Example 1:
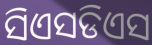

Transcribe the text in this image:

ସିଏସଡିଏସ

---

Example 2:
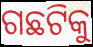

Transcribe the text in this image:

ଗଛଟିକୁ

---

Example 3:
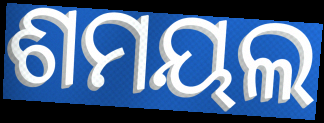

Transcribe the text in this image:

ଶମୟଲ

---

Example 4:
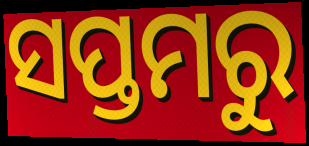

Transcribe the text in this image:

ସପ୍ତମରୁ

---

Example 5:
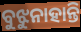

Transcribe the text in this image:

ବୁଝୁନାହାନ୍ତି